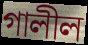
গালীল